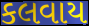
કલવાય